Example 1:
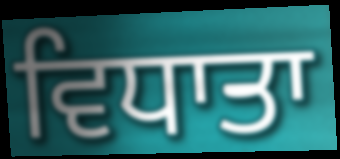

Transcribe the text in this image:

ਵਿਧਾਤਾ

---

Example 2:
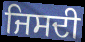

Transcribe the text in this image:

ਜਿਸਦੀ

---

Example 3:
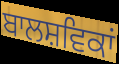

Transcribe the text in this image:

ਬਾਲਸ਼ਵਿਕਾਂ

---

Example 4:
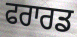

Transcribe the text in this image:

ਫਰਾਰਡ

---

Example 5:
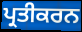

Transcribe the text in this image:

ਪ੍ਰਤੀਕਰਨ